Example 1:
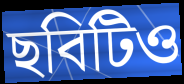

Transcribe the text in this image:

ছবিটিও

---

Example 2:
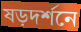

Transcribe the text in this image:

ষড়দর্শনে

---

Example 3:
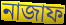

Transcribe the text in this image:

নাজাফ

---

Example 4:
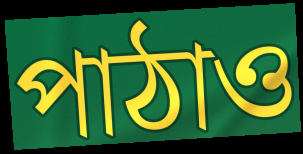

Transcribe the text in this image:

পাঠাও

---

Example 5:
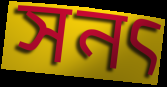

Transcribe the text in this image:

সনৎ